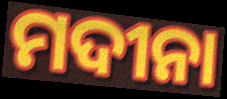
ମଦୀନା